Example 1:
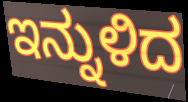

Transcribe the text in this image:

ಇನ್ನುಳಿದ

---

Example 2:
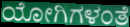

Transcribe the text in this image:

ಯೋಗಿಗಳಂತೆ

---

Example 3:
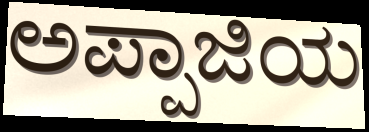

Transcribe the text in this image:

ಅಪ್ಪಾಜಿಯ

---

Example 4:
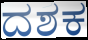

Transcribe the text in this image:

ದಶಕ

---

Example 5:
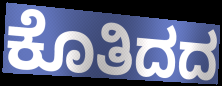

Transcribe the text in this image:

ಕೊತಿದದ